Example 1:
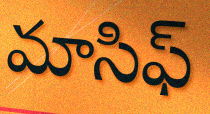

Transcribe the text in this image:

మాసిఫ్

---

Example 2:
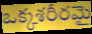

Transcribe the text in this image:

ఒక్కశరీరమై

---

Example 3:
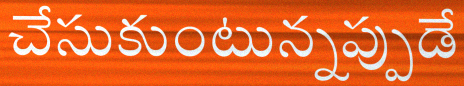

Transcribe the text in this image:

చేసుకుంటున్నప్పుడే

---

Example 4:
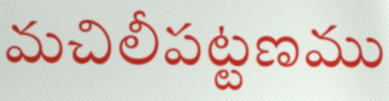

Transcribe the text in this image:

మచిలీపట్టణము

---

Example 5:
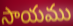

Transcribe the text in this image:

సాయము